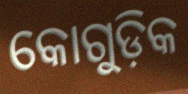
କୋଗୁଡ଼ିକ